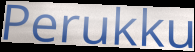
Perukku